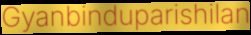
Gyanbinduparishilan